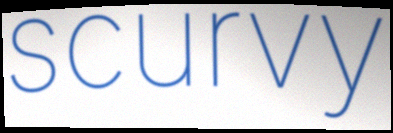
scurvy